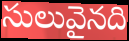
సులువైనది